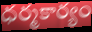
ధర్మకార్యం